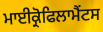
ਮਾਈਕ੍ਰੋਫਿਲਾਮੈਂਟਸ